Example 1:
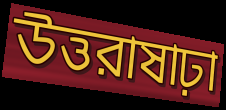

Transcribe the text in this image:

উত্তরাষাঢ়া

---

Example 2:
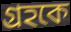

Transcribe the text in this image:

গ্রহকে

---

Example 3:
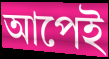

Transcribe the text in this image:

আপেই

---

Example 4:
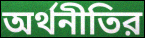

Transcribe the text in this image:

অর্থনীতির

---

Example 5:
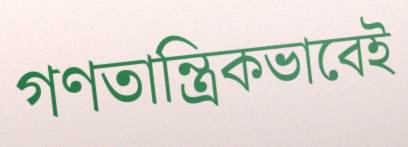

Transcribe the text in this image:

গণতান্ত্রিকভাবেই